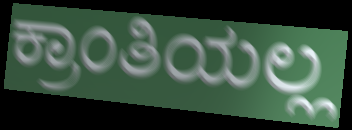
ಕ್ರಾಂತಿಯಲ್ಲ